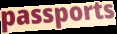
passports